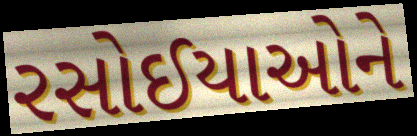
રસોઈયાઓને